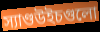
স্যাণ্ডউইচগুলো